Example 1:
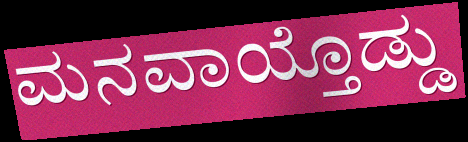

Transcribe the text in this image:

ಮನವಾಯ್ತೊಡ್ಡು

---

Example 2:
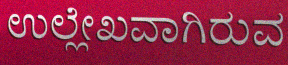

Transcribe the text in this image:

ಉಲ್ಲೇಖವಾಗಿರುವ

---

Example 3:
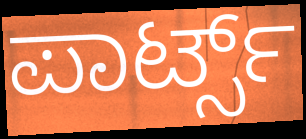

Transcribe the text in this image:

ಪಾರ್ಟ್ಸ್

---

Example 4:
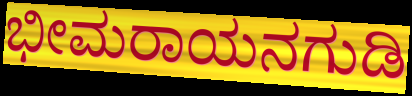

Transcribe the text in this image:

ಭೀಮರಾಯನಗುಡಿ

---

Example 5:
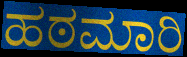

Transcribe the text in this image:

ಹಠಮಾರಿ